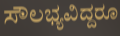
ಸೌಲಭ್ಯವಿದ್ದರೂ